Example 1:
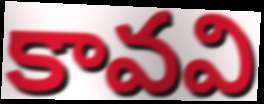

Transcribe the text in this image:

కావవి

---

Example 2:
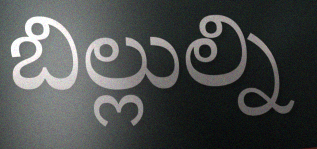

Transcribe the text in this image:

బిల్లుల్ని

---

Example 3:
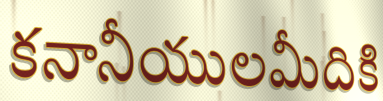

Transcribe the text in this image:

కనానీయులమీదికి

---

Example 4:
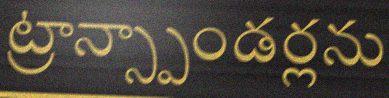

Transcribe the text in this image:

ట్రాన్స్పాండర్లను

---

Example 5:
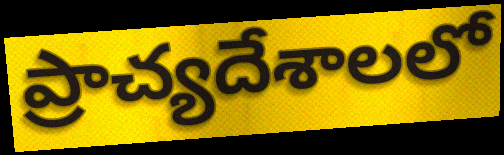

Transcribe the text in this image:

ప్రాచ్యదేశాలలో